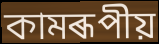
কামৰূপীয়